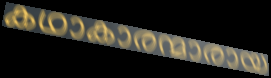
കഥാകാരന്മാരായ